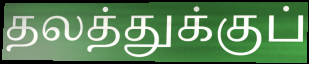
தலத்துக்குப்